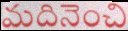
మదినెంచి